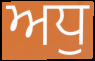
ਅਧੁ